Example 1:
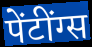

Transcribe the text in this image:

पेंटींग्स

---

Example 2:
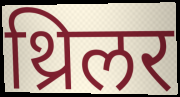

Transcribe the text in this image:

थ्रिलर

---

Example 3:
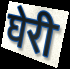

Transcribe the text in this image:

घेरी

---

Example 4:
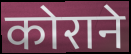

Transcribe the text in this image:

कोराने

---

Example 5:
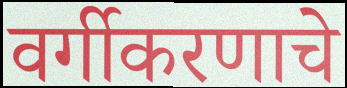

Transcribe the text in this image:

वर्गीकरणाचे